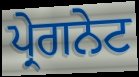
ਪ੍ਰੇਗਨੇਟ